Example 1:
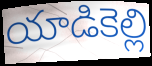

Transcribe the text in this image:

యాడికెల్లి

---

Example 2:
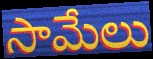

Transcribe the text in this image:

సామేలు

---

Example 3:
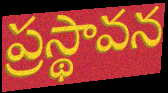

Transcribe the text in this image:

ప్రస్థావన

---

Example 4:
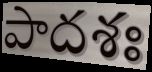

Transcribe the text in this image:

పాదశః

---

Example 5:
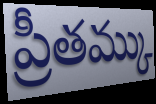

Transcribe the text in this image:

ప్రీతమ్కు